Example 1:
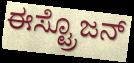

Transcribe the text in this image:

ಈಸ್ಟ್ರೊಜನ್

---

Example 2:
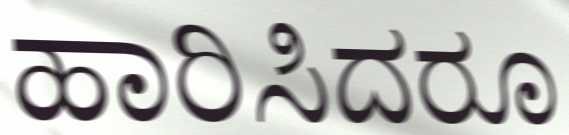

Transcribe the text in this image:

ಹಾರಿಸಿದರೂ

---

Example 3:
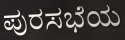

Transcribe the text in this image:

ಪುರಸಭೆಯ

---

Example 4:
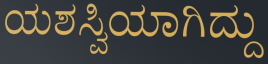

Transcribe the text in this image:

ಯಶಸ್ವಿಯಾಗಿದ್ದು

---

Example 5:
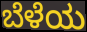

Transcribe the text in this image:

ಬೆಳೆಯ